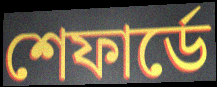
শেফার্ডে